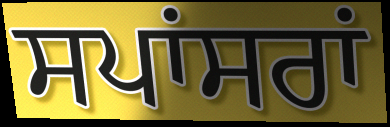
ਸਪਾਂਸਰਾਂ